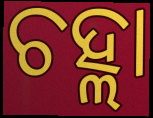
ଚହ୍ଲା